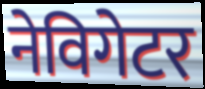
नेविगेटर